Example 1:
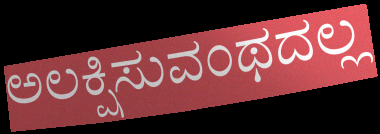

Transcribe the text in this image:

ಅಲಕ್ಷಿಸುವಂಥದಲ್ಲ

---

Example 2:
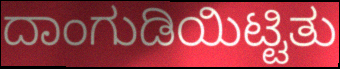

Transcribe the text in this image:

ದಾಂಗುಡಿಯಿಟ್ಟಿತು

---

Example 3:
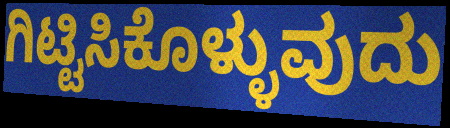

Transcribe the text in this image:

ಗಿಟ್ಟಿಸಿಕೊಳ್ಳುವುದು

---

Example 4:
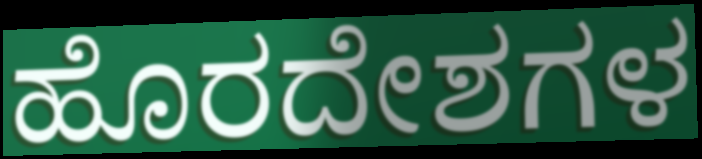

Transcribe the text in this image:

ಹೊರದೇಶಗಳ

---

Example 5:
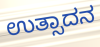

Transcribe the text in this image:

ಉತ್ಸಾದನ